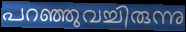
പറഞ്ഞുവച്ചിരുന്നു